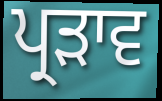
ਪ੍ਰੜਾਵ